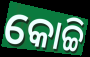
କୋଚ୍ଚି